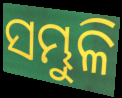
ସମ୍ଭୁଳି